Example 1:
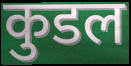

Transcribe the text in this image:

कुडल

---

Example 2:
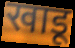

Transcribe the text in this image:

खाडू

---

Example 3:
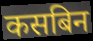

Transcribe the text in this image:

कसबिन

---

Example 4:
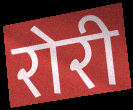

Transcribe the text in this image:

रोरी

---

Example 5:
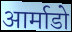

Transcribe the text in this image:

आर्माडो